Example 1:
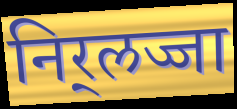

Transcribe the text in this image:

निर्लज्जा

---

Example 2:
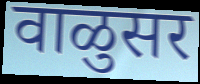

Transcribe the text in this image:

वाळुसर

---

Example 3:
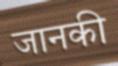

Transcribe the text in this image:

जानकी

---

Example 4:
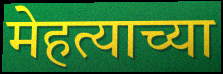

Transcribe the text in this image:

मेहत्याच्या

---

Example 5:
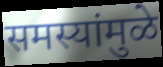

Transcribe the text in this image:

समस्यांमुळे